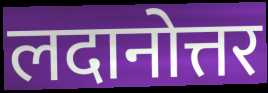
लदानोत्तर